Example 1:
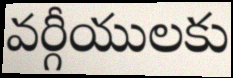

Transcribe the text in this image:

వర్గీయులకు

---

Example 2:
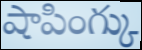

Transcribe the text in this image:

షాపింగ్కు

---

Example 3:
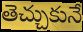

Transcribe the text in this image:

తెచ్చుకునే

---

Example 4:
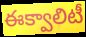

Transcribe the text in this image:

ఈక్వాలిటీ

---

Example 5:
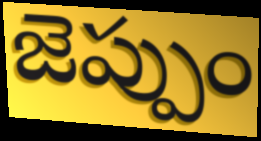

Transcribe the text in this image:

జెప్పుం